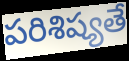
పరిశిష్యతే